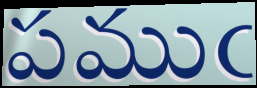
పముఁ